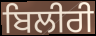
ਬਿਲੀਰੀ